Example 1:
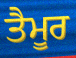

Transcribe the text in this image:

ਤੈਮੂਰ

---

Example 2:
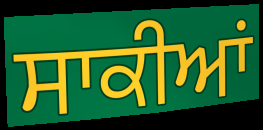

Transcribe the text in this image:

ਸਾਕੀਆਂ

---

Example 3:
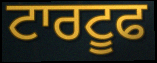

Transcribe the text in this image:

ਟਾਰਟੂਫ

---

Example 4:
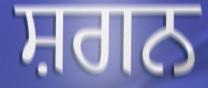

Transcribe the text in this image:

ਸ਼ਗਨ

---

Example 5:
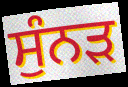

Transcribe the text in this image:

ਸੁੰਨੜ